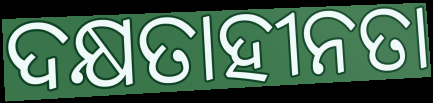
ଦକ୍ଷତାହୀନତା